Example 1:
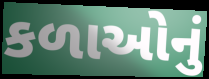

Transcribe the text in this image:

કળાઓનું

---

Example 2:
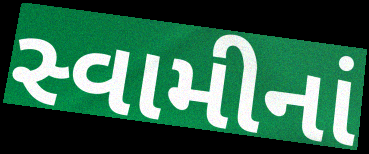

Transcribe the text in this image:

સ્વામીનાં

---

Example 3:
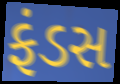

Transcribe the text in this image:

ફંડસ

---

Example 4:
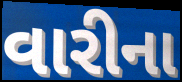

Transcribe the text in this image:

વારીના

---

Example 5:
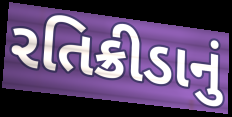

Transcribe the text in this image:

રતિક્રીડાનું